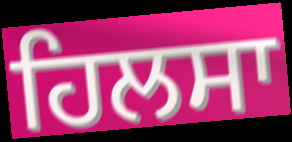
ਹਿਲਸਾ